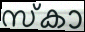
സ്കാ